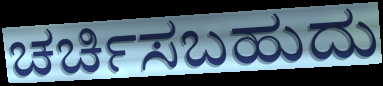
ಚರ್ಚಿಸಬಹುದು